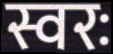
स्वरः